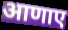
आणाए